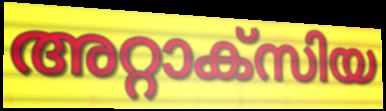
അറ്റാക്സിയ